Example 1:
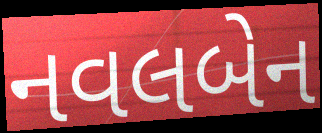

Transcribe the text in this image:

નવલબેન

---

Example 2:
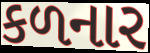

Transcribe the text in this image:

કળનાર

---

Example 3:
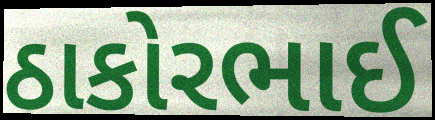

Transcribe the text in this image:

ઠાકોરભાઈ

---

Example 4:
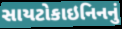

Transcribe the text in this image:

સાયટોકાઇનિનનું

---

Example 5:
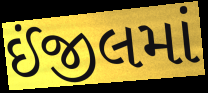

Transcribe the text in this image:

ઈંજીલમાં